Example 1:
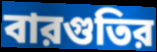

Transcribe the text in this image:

বারগুতির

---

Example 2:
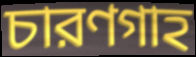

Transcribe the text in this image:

চারণগাহ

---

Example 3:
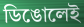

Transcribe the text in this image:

ডিঙোলেই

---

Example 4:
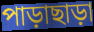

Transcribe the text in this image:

পাড়াছাড়া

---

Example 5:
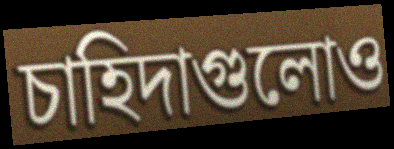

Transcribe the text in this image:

চাহিদাগুলোও